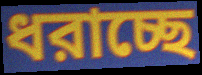
ধরাচ্ছে